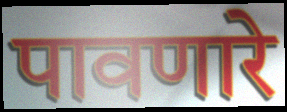
पावणारे